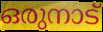
ഒരുനാട്